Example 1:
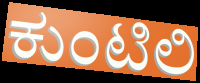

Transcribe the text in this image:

ಕುಂಟಿಲಿ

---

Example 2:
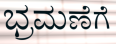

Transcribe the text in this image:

ಭ್ರಮಣೆಗೆ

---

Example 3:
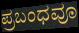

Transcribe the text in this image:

ಪ್ರಬಂಧವೂ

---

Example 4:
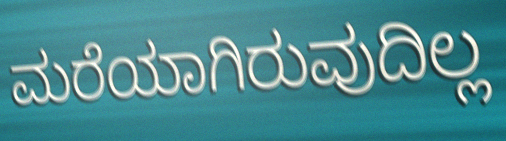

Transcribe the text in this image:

ಮರೆಯಾಗಿರುವುದಿಲ್ಲ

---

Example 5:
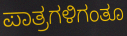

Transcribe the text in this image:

ಪಾತ್ರಗಳಿಗಂತೂ